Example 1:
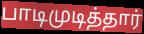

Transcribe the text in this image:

பாடிமுடித்தார்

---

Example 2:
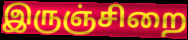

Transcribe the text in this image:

இருஞ்சிறை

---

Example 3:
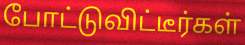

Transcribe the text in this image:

போட்டுவிட்டீர்கள்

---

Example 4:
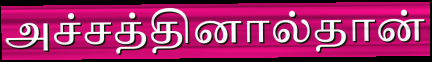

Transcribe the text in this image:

அச்சத்தினால்தான்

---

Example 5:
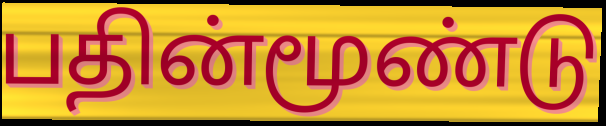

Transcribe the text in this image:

பதின்மூண்டு